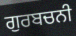
ਗੁਰਬਚਨੀ